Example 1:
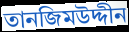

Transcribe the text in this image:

তানজিমউদ্দীন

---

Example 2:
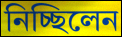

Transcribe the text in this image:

নিচ্ছিলেন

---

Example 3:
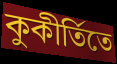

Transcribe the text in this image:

কুকীর্তিতে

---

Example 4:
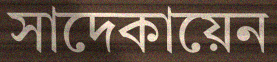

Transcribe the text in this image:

সাদেকায়েন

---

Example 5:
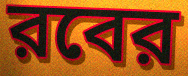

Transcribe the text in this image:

রবের